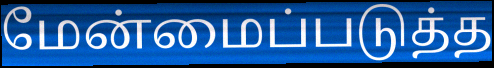
மேன்மைப்படுத்த